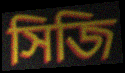
সিজি